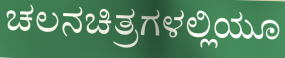
ಚಲನಚಿತ್ರಗಳಲ್ಲಿಯೂ